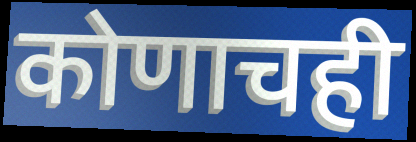
कोणाचही